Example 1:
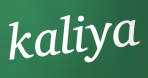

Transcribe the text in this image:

kaliya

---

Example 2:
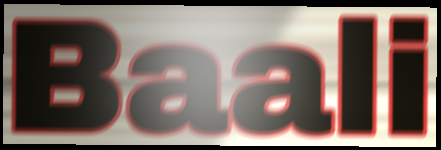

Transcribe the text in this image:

Baali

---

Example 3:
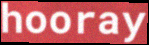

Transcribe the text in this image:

hooray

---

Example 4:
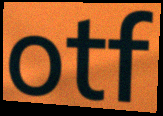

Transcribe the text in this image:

otf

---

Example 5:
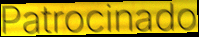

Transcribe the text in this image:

Patrocinado